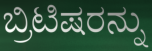
ಬ್ರಿಟಿಷರನ್ನು